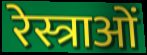
रेस्त्राओं